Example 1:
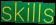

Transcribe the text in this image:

skills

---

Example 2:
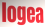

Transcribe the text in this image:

logea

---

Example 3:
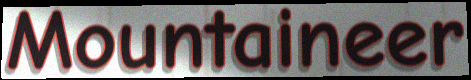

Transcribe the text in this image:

Mountaineer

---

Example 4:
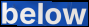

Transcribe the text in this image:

below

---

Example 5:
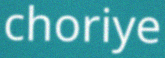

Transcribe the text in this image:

choriye